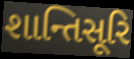
શાન્તિસૂરિ